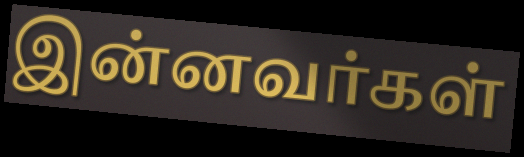
இன்னவர்கள்